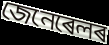
জেনেৰেলৰ